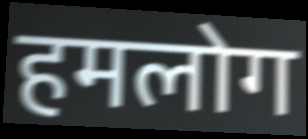
हमलोग